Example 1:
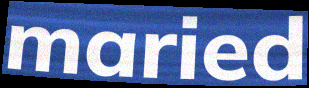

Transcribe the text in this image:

maried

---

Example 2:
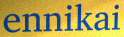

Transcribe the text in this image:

ennikai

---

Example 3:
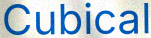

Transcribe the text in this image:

Cubical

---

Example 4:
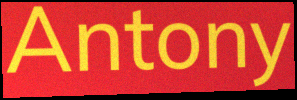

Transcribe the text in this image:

Antony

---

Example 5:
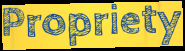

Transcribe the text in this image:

Propriety